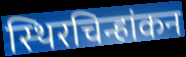
स्थिरचिन्हांकन